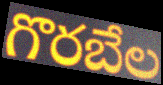
గొరబేల